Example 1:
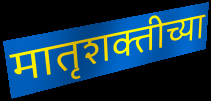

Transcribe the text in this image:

मातृशक्तीच्या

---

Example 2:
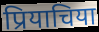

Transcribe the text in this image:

प्रियाचिया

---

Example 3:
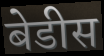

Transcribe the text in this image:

बेडीस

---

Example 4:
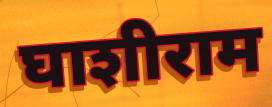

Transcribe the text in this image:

घाशीराम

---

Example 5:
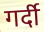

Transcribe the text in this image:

गर्दी